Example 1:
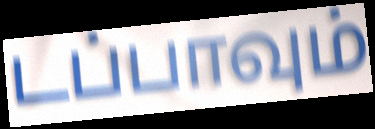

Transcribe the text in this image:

டப்பாவும்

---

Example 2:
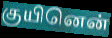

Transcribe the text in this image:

குயினென்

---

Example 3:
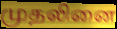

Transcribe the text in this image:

முதலினை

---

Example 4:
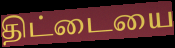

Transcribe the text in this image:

திட்டையை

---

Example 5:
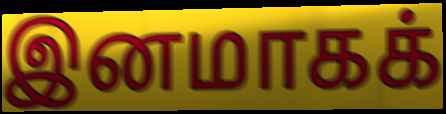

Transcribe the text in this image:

இனமாகக்